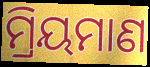
ମ୍ରିୟମାଣ